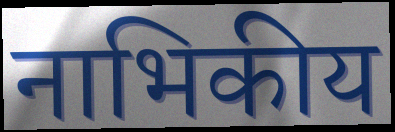
नाभिकीय